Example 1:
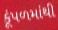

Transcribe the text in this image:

કૂંપળમાંથી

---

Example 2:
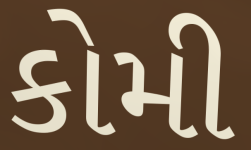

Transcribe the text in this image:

કોમી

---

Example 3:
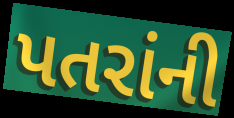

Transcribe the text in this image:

પતરાંની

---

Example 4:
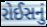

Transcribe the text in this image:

રોઈસનું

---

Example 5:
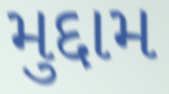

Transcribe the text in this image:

મુદ્દામ